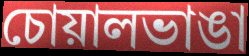
চোয়ালভাঙা